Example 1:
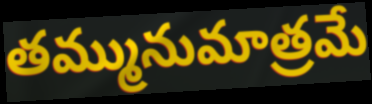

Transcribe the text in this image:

తమ్మునుమాత్రమే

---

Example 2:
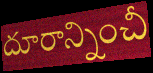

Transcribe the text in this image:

దూరాన్నించీ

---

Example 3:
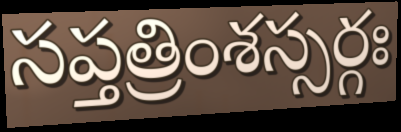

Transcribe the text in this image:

సప్తత్రింశస్సర్గః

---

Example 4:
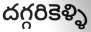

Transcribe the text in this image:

దగ్గరికెళ్ళి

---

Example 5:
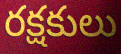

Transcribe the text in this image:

రక్షకులు